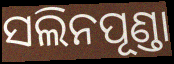
ସଲିନପୂଣ୍ଡା